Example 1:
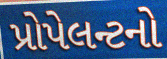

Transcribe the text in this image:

પ્રોપેલન્ટનો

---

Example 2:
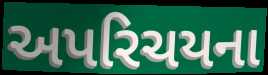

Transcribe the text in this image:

અપરિચયના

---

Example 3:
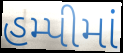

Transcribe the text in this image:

હમ્પીમાં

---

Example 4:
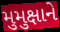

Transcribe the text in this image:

મુમુક્ષાને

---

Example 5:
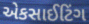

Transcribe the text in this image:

એકસાઈટિંગ